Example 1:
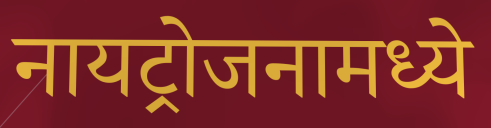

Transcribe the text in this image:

नायट्रोजनामध्ये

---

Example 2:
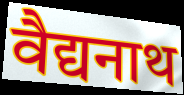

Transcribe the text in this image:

वैद्यनाथ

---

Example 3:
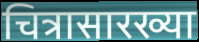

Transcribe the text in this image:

चित्रासारख्या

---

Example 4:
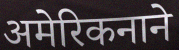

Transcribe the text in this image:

अमेरिकनाने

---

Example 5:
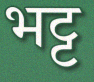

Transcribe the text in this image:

भट्ट